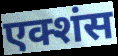
एक्शंस